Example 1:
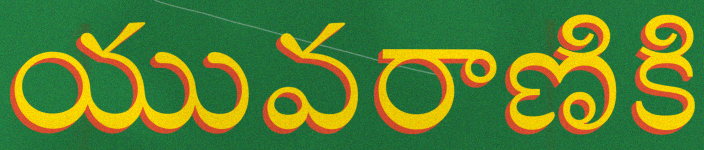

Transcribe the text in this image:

యువరాణికి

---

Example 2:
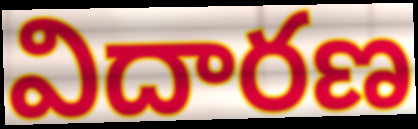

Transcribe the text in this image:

విదారణ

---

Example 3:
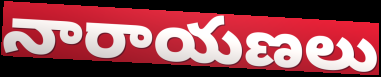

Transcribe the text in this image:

నారాయణలు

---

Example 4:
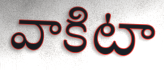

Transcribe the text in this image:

వాకిటా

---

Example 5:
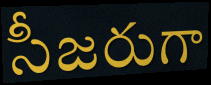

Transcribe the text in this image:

సీజరుగా